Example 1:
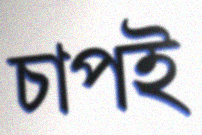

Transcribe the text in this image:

চাপই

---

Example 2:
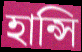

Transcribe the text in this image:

হান্সি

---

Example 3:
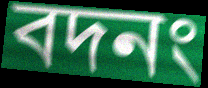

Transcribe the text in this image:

বদনং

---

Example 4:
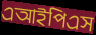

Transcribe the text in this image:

এআইপিএস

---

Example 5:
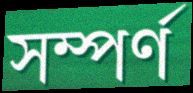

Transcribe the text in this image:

সম্পর্ণ